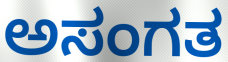
ಅಸಂಗತ